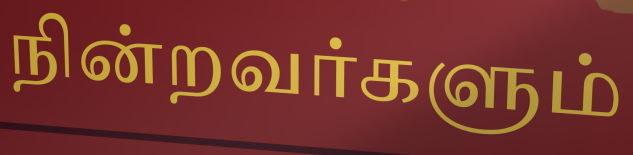
நின்றவர்களும்